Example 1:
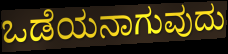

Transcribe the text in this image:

ಒಡೆಯನಾಗುವುದು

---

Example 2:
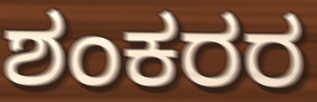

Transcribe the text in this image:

ಶಂಕರರ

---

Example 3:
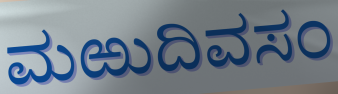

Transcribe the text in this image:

ಮಱುದಿವಸಂ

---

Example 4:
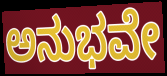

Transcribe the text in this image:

ಅನುಭವೇ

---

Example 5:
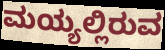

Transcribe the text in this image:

ಮಯ್ಯಲ್ಲಿರುವ